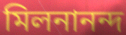
মিলনানন্দ